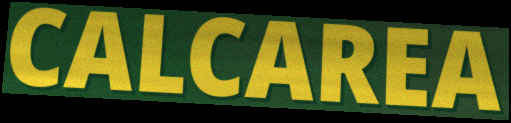
CALCAREA